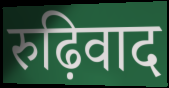
रुढ़िवाद